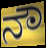
ನೌ